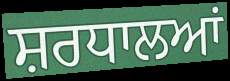
ਸ਼ਰਧਾਲਆਂ